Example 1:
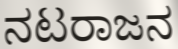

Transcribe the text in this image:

ನಟರಾಜನ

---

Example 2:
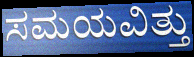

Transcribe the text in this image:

ಸಮಯವಿತ್ತು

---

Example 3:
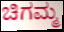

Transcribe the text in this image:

ಚಿಗಮ್ಮ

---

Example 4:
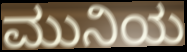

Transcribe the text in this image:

ಮುನಿಯ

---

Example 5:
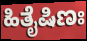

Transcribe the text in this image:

ಹಿತೈಷಿಣಃ